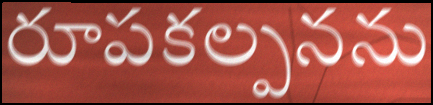
రూపకల్పనను